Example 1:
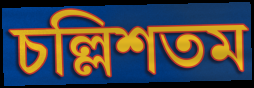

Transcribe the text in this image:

চল্লিশতম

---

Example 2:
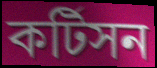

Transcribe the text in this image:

কর্টিসন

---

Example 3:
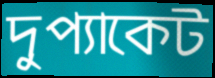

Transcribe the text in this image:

দুপ্যাকেট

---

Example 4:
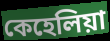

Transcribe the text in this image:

কেহেলিয়া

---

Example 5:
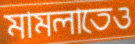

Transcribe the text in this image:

মামলাতেও